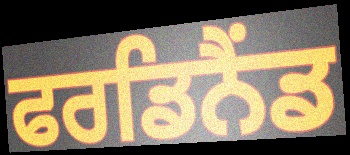
ਫਰਡਿਨੈਂਡ